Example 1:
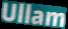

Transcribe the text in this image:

Ullam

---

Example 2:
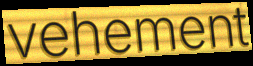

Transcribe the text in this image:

vehement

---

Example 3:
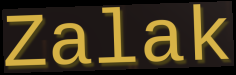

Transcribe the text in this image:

Zalak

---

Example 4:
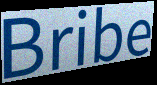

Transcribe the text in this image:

Bribe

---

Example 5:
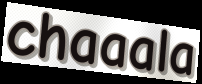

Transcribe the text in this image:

chaaala